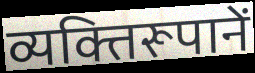
व्यक्तिरूपानें